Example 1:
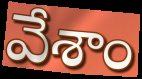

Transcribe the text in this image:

వేశాం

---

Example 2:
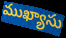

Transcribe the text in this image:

ముఖ్యాసు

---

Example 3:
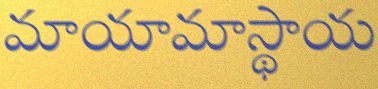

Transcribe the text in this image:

మాయామాస్థాయ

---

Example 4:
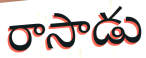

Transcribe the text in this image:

రాసాడు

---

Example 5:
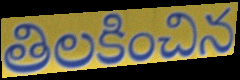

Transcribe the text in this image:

తిలకించిన